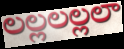
లల్లలల్లలా